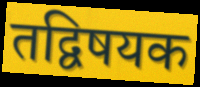
तद्विषयक